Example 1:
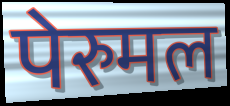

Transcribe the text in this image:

पेरुमल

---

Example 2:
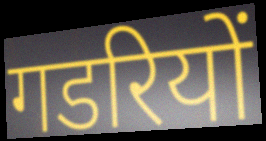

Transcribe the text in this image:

गडरियों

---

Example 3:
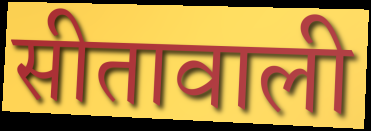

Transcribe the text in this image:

सीतावाली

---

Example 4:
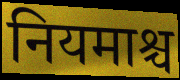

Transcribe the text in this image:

नियमाश्च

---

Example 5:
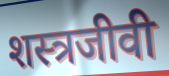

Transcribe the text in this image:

शस्त्रजीवी